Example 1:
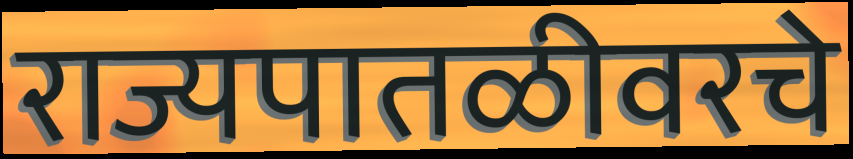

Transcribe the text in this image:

राज्यपातळीवरचे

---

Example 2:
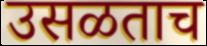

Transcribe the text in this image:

उसळताच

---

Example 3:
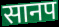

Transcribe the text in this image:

सानप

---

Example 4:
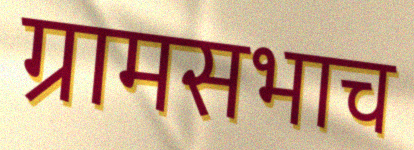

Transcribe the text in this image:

ग्रामसभाच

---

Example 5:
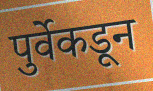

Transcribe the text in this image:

पुर्वेकडून